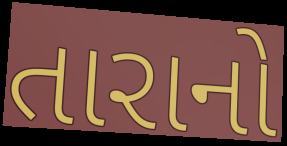
તારાનો